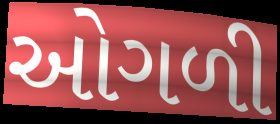
ઓગળી